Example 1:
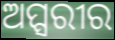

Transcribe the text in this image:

ଅପ୍ସରୀର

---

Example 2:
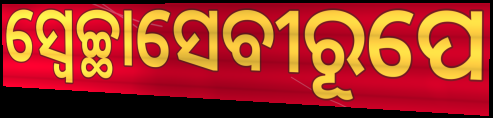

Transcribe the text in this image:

ସ୍ଵେଚ୍ଛାସେବୀରୂପେ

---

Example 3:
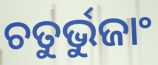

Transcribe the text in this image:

ଚତୁର୍ଭୁଜାଂ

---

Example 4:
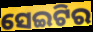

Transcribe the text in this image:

ସେଇଟିର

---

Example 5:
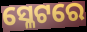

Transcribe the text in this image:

ସ୍ଳେଟରେ